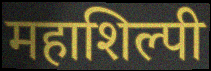
महाशिल्पी